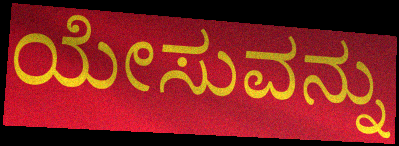
ಯೇಸುವನ್ನು